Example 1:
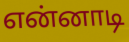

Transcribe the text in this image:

என்னாடி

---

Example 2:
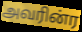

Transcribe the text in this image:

அவரின்ர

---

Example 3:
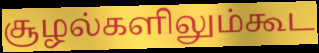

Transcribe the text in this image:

சூழல்களிலும்கூட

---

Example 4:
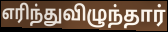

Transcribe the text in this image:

எரிந்துவிழுந்தார்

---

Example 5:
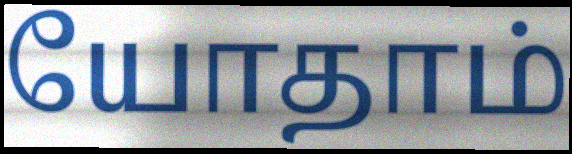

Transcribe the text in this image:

யோதாம்